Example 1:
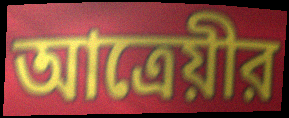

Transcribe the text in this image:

আত্রেয়ীর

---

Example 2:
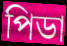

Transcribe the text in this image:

পিডা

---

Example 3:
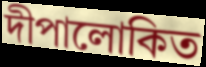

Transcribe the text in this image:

দীপালোকিত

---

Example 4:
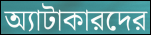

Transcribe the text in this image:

অ্যাটাকারদের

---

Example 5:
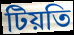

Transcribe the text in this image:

টিয়তি